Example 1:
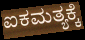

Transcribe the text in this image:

ಐಕಮತ್ಯಕ್ಕೆ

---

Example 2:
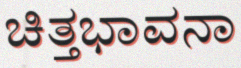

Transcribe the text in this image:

ಚಿತ್ತಭಾವನಾ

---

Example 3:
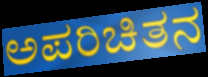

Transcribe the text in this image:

ಅಪರಿಚಿತನ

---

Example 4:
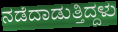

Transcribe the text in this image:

ನಡೆದಾಡುತ್ತಿದ್ದಳು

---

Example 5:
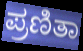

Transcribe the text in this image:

ಪ್ರಣಿತಾ